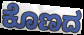
ಕೊಣದ